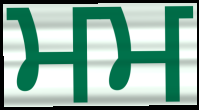
ਮਮ